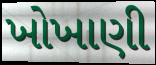
ખોખાણી